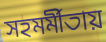
সহমর্মীতায়